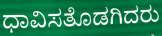
ಧಾವಿಸತೊಡಗಿದರು